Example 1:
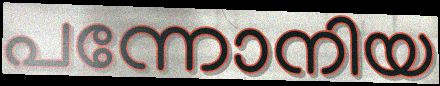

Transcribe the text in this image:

പന്നോനിയ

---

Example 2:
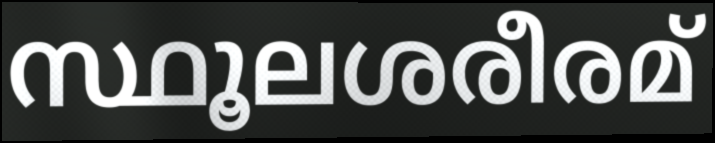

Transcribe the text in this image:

സ്ഥൂലശരീരമ്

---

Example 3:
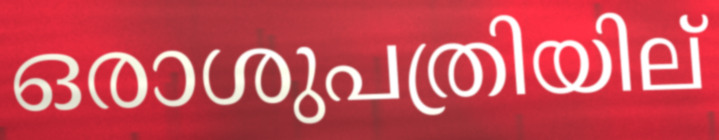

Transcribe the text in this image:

ഒരാശുപത്രിയില്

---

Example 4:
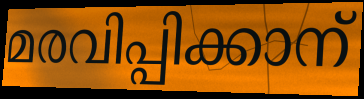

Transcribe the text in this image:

മരവിപ്പിക്കാന്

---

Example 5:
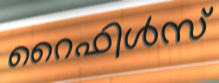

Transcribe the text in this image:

റൈഫിൾസ്